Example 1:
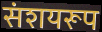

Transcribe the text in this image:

संशयरूप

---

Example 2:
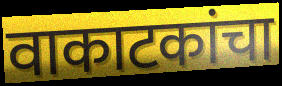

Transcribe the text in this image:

वाकाटकांचा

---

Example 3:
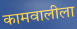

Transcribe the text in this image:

कामवालीला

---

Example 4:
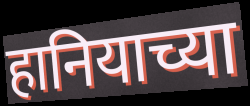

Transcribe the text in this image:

हानियाच्या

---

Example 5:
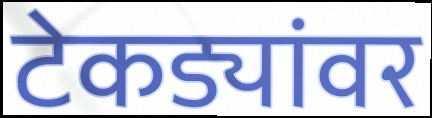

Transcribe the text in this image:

टेकड्यांवर